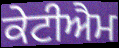
ਕੇਟੀਐਮ